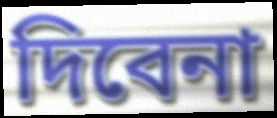
দিবেনা